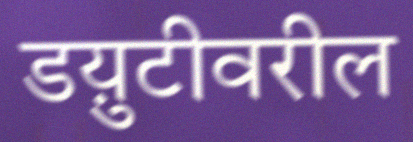
डय़ुटीवरील